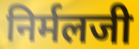
निर्मलजी